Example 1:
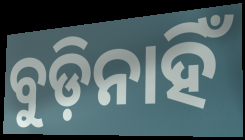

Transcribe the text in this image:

ବୁଡ଼ିନାହିଁ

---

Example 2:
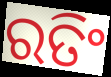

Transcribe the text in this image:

ରତିଂ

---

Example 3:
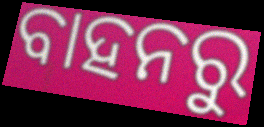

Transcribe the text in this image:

ବାହନରୁ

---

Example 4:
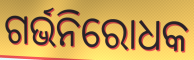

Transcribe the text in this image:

ଗର୍ଭନିରୋଧକ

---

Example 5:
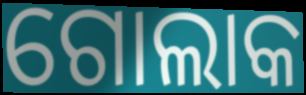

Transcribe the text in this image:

ଗୋଲାକ